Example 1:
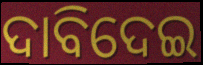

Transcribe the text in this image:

ଦାବିଦେଇ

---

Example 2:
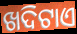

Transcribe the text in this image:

ଖଦିଟାଏ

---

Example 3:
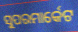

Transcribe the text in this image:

ସୁପରମାର୍କେଟ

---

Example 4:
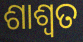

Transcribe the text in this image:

ଶାଶ୍ଵତ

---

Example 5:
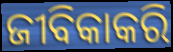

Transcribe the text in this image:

ଜୀବିକାକରି